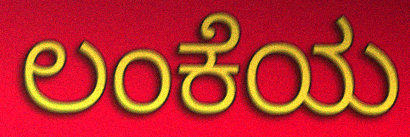
ಲಂಕೆಯ